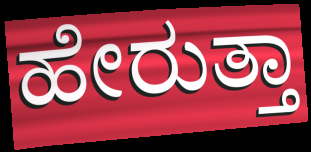
ಹೇರುತ್ತಾ